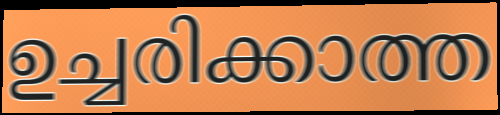
ഉച്ചരിക്കാത്ത